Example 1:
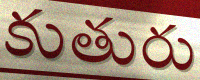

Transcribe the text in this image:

కుతురు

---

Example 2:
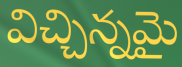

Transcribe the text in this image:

విచ్చిన్నమై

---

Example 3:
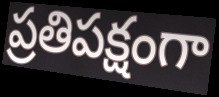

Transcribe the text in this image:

ప్రతిపక్షంగా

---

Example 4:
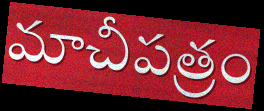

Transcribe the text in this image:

మాచీపత్రం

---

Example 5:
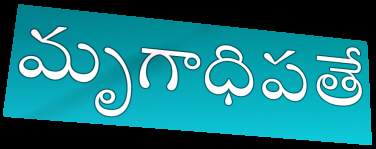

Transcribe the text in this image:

మృగాధిపతే